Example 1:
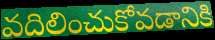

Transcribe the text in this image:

వదిలించుకోవడానికి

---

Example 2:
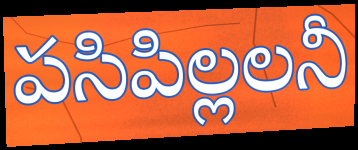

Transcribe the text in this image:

పసిపిల్లలనీ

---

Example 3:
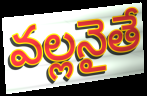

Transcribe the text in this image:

వల్లనైతే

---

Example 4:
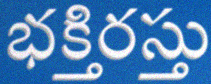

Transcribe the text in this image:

భక్తిరస్తు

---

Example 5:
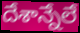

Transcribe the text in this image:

దేశాన్నేలే